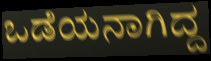
ಒಡೆಯನಾಗಿದ್ದ